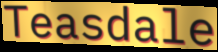
Teasdale